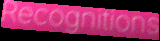
Recognitions